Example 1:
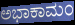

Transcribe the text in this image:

ಅಭಾಕಾಮಂ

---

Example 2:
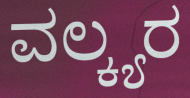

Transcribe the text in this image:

ವಲ್ಕ್ಯರ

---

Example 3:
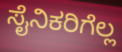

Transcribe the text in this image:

ಸೈನಿಕರಿಗೆಲ್ಲ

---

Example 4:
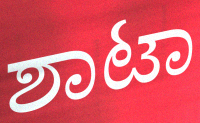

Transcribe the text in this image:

ಶಾಟಾ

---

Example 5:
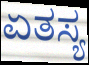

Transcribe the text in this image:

ಏತಸ್ಯ